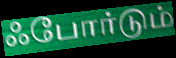
ஃபோர்டும்